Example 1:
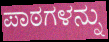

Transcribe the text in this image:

ಪಾಠಗಳನ್ನು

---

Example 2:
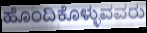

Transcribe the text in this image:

ಹೊಂದಿಕೊಳ್ಳುವವರು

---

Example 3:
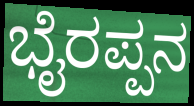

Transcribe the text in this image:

ಭೈರಪ್ಪನ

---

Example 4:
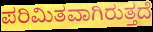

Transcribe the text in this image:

ಪರಿಮಿತವಾಗಿರುತ್ತದೆ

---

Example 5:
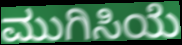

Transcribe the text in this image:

ಮುಗಿಸಿಯೆ